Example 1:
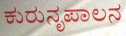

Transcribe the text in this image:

ಕುರುನೃಪಾಲನ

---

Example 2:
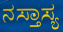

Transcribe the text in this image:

ನಸ್ತಾಸ್ಯ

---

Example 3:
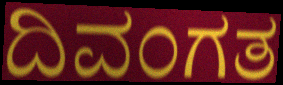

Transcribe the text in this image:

ದಿವಂಗತ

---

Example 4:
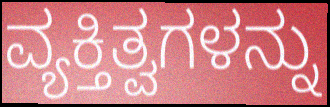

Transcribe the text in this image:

ವ್ಯಕ್ತಿತ್ವಗಳನ್ನು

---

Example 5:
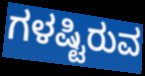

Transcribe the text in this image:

ಗಳಷ್ಟಿರುವ